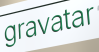
gravatar